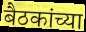
बैठकांच्या